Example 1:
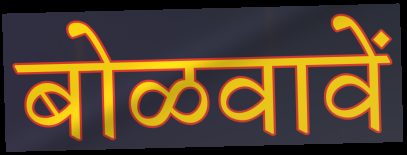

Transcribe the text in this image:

बोळवावें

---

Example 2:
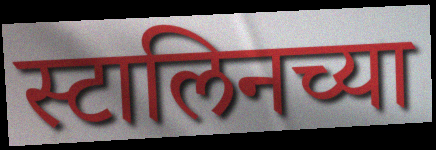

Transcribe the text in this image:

स्टालिनच्या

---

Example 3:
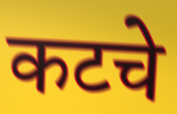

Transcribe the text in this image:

कटचे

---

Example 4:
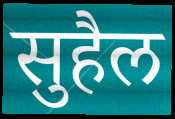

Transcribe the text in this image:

सुहैल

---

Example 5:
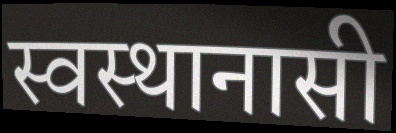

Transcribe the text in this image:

स्वस्थानासी